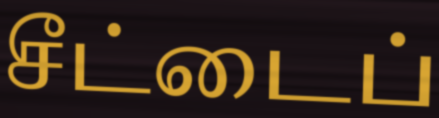
சீட்டைப்